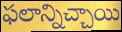
ఫలాన్నిచ్చాయి